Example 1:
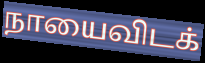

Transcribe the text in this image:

நாயைவிடக்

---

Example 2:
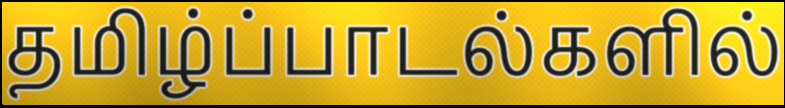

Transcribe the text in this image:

தமிழ்ப்பாடல்களில்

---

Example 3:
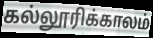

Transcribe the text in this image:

கல்லூரிக்காலம்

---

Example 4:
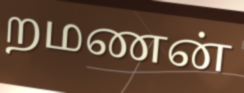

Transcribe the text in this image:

றமணன்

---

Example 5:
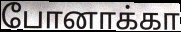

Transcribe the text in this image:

போனாக்கா